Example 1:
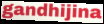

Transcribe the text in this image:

gandhijina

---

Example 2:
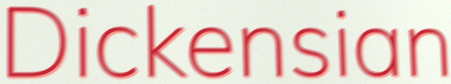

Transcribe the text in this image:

Dickensian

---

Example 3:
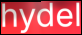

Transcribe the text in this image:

hydel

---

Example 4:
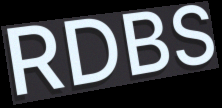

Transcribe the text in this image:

RDBS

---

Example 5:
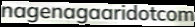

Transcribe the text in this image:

nagenagaaridotcom